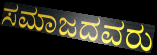
ಸಮಾಜದವರು